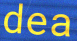
dea